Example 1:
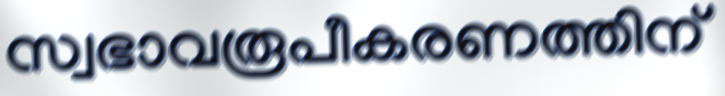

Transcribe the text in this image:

സ്വഭാവരൂപീകരണത്തിന്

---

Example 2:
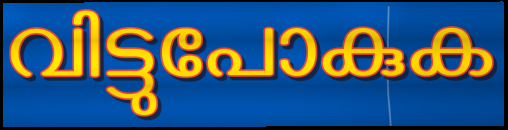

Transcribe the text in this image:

വിട്ടുപോകുക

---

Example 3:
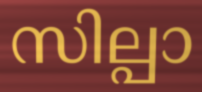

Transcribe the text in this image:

സില്പാ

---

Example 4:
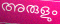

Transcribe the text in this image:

അരുളും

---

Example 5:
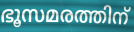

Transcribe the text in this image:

ഭൂസമരത്തിന്